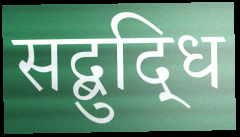
सद्बुद्धि